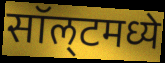
सॉल्टमध्ये